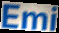
Emi